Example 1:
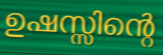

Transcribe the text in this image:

ഉഷസ്സിന്റെ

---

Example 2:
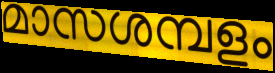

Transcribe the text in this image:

മാസശമ്പളം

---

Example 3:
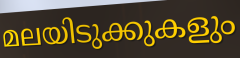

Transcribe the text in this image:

മലയിടുക്കുകളും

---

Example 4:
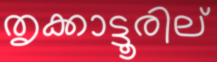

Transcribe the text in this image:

തൃക്കാട്ടൂരില്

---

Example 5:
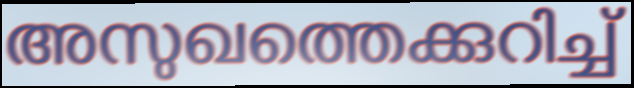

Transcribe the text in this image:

അസുഖത്തെക്കുറിച്ച്